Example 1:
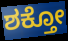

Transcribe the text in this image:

ಶಕ್ತೋ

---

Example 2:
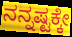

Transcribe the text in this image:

ನನ್ನಷ್ಟಕ್ಕೇ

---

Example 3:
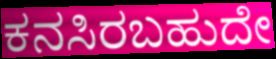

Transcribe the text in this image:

ಕನಸಿರಬಹುದೇ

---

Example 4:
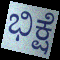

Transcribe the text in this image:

ಭಿಕ್ಷೆ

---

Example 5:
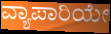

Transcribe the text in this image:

ವ್ಯಾಪಾರಿಯೇ